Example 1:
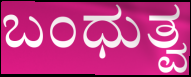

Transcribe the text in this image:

ಬಂಧುತ್ವ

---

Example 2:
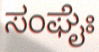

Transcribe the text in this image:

ಸಂಘೈಃ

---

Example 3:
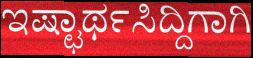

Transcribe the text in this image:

ಇಷ್ಟಾರ್ಥಸಿದ್ದಿಗಾಗಿ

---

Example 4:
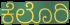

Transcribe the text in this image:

ಕೆಲೊರಿ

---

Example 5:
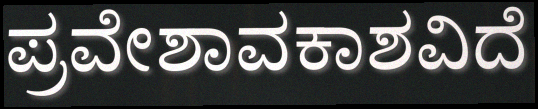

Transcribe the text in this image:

ಪ್ರವೇಶಾವಕಾಶವಿದೆ